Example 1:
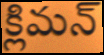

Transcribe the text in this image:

క్లిమన్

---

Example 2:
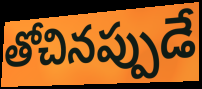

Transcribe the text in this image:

తోచినప్పుడే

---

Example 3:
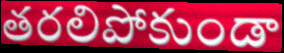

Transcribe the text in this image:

తరలిపోకుండా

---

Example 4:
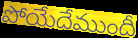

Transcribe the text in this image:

పోయేదేముందీ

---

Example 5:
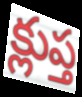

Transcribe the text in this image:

క్లుప్త